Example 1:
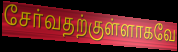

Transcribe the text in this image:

சேர்வதற்குள்ளாகவே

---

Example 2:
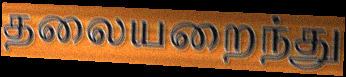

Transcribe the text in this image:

தலையறைந்து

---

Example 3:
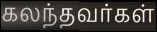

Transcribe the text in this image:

கலந்தவர்கள்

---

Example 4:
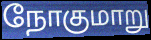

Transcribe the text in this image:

நோகுமாறு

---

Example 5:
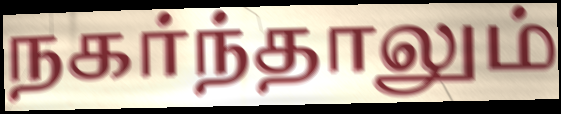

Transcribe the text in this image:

நகர்ந்தாலும்